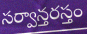
సర్వాన్తరస్తం